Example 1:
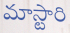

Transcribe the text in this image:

మాస్టారి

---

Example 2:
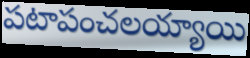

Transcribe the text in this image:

పటాపంచలయ్యాయి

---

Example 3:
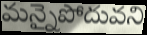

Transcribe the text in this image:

మన్నైపోదువని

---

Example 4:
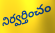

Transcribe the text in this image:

నిర్వర్తించం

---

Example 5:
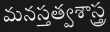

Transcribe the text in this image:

మనస్తత్వశాస్త్ర